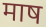
माष